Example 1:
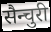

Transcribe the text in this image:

सैन्चुरी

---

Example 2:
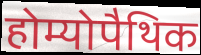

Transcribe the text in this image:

होम्योपैथिक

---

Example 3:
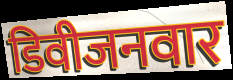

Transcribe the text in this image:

डिवीजनवार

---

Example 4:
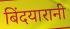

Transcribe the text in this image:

बिंदयारानी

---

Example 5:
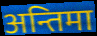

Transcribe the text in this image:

अन्तिमा